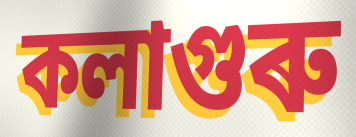
কলাগুৰু